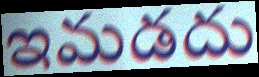
ఇమడదు